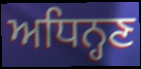
ਅਧਿਨ੍ਹਣ